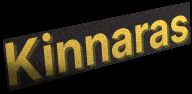
Kinnaras